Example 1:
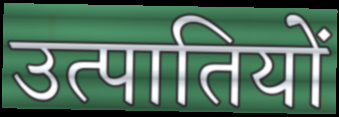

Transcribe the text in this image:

उत्पातियों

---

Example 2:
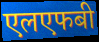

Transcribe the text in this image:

एलएफबी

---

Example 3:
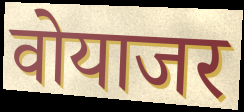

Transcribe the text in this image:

वोयाजर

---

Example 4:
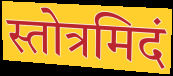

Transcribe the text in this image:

स्तोत्रमिदं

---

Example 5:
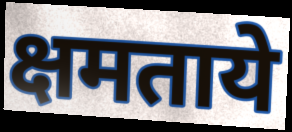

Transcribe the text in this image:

क्षमताये